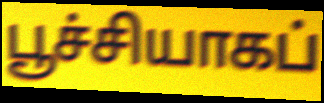
பூச்சியாகப்